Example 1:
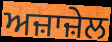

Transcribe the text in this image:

ਅਜ਼ਾਜ਼ੇਲ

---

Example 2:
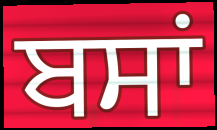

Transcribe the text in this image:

ਬਸਾਂ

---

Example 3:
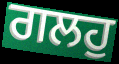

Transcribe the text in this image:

ਗਲਹੁ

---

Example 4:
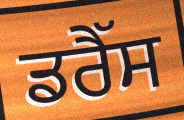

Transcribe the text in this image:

ਡਰੈੱਸ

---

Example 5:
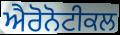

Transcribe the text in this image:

ਐਰੋਨੋਟੀਕਲ